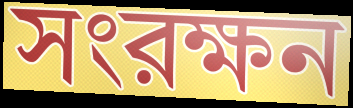
সংরক্ষন